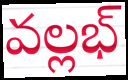
వల్లభ్